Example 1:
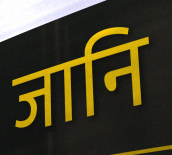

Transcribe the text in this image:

जानि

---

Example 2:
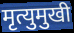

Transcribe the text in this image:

मृत्युमुखी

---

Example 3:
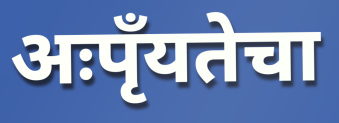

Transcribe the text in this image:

अःपृँयतेचा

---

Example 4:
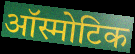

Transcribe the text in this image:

ऑस्मोटिक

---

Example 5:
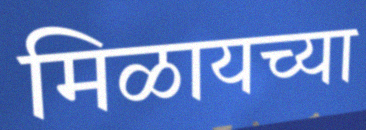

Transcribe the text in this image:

मिळायच्या